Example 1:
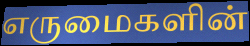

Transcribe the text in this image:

எருமைகளின்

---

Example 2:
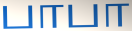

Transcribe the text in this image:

பாபா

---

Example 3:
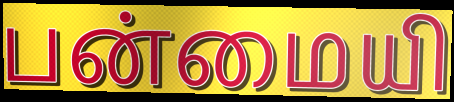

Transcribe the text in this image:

பன்மையி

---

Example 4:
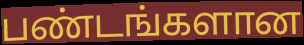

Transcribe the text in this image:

பண்டங்களான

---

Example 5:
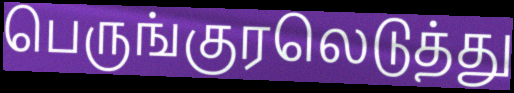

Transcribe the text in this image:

பெருங்குரலெடுத்து